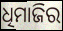
ଧିମାଜିର